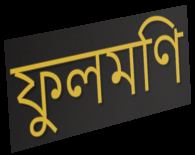
ফুলমণি